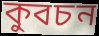
কুবচন